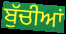
ਬੁੱਚੀਆਂ